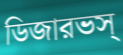
ডিজারভস্